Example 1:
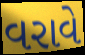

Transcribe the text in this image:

વરાવે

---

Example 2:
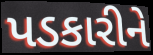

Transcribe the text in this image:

પડકારીને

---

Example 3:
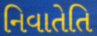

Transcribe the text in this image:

નિવાતેતિ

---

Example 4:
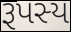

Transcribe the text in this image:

રૂપસ્ય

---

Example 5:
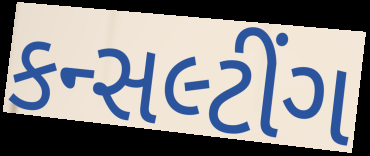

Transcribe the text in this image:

કન્સલ્ટીંગ